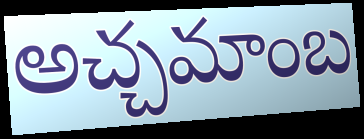
అచ్చమాంబ